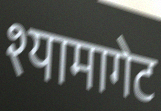
श्यामागेट